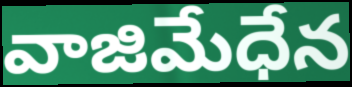
వాజిమేధేన